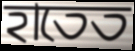
হাতেত